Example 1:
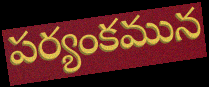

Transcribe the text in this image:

పర్యంకమున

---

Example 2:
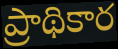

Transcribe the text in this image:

ప్రాథికార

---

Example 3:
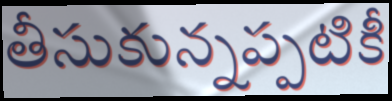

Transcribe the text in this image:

తీసుకున్నప్పటికీ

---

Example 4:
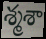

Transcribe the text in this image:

శ్మశా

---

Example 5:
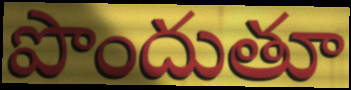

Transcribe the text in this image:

పొందుతూ